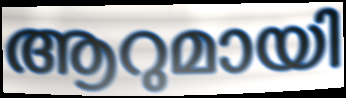
ആറുമായി